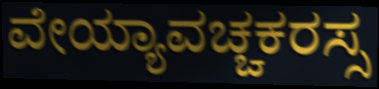
ವೇಯ್ಯಾವಚ್ಚಕರಸ್ಸ